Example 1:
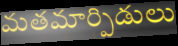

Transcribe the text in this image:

మతమార్పిడులు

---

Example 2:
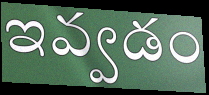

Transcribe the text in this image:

ఇవ్వడం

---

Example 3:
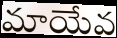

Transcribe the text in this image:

మాయేవ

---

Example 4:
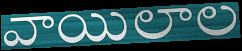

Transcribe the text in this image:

వాయిలాల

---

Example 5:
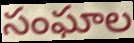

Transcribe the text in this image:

సంఘాల